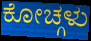
ಕೋಚ್ಗಳು